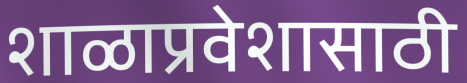
शाळाप्रवेशासाठी